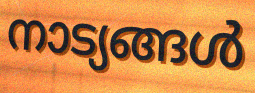
നാട്യങ്ങൾ